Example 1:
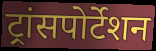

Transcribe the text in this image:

ट्रांसपोर्टेशन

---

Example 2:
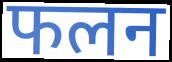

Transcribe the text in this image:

फलन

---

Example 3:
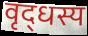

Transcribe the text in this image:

वृद्धस्य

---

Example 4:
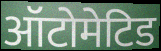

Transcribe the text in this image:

ऑटोमेटिड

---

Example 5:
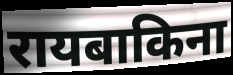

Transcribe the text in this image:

रायबाकिना